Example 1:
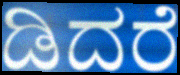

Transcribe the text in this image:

ಡಿದರೆ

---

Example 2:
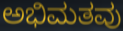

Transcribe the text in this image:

ಅಭಿಮತವು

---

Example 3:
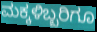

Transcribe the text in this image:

ಮಕ್ಕಳಿಬ್ಬರಿಗೂ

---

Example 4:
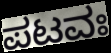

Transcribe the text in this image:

ಪಟವಃ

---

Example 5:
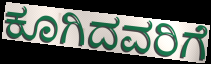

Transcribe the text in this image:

ಕೂಗಿದವರಿಗೆ